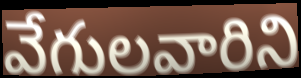
వేగులవారిని